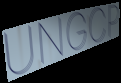
UNGCP